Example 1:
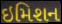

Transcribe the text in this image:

ઇમિશન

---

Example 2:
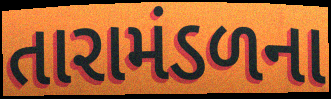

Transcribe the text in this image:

તારામંડળના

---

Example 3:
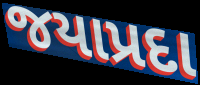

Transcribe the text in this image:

જયાપ્રદા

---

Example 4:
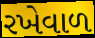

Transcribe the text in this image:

રખેવાળ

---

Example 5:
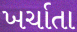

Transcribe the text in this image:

ખર્ચાતા